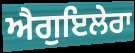
ਐਗੁਇਲੇਰਾ